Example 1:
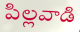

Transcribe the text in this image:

పిల్లవాడి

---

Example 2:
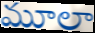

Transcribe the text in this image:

మూలా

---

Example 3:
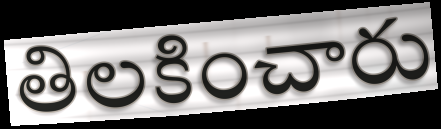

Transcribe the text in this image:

తిలకించారు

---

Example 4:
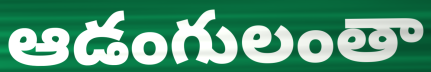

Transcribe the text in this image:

ఆడంగులంతా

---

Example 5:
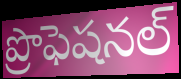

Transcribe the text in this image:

ప్రొఫెషనల్